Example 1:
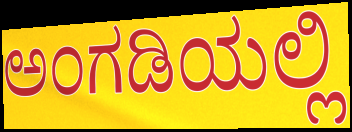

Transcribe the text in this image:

ಅಂಗಡಿಯಲ್ಲಿ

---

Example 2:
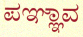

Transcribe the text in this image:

ಪಞ್ಞಾವ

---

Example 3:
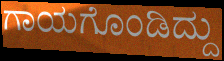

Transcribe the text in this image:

ಗಾಯಗೊಂಡಿದ್ದು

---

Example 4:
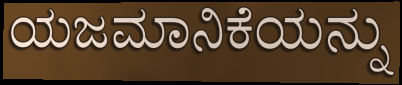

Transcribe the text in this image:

ಯಜಮಾನಿಕೆಯನ್ನು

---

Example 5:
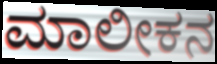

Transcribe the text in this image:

ಮಾಲೀಕನ